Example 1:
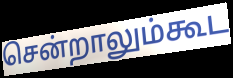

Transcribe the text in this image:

சென்றாலும்கூட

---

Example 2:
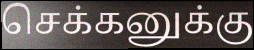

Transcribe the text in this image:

செக்கனுக்கு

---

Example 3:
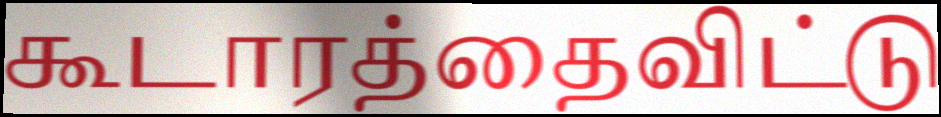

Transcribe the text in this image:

கூடாரத்தைவிட்டு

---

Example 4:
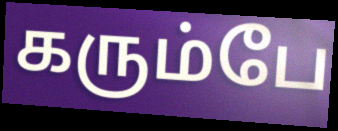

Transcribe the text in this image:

கரும்பே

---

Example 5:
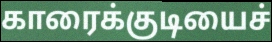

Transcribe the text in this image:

காரைக்குடியைச்